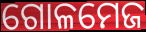
ଗୋଳମେଜ